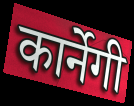
कार्नेगी